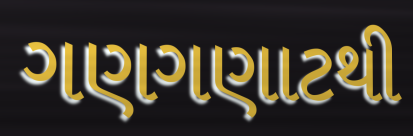
ગણગણાટથી